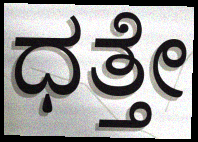
ಧತ್ತೇ